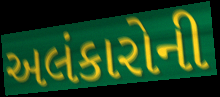
અલંકારોની